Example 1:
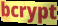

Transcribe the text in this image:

bcrypt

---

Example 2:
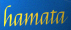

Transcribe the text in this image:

hamata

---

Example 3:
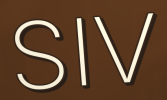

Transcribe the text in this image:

SIV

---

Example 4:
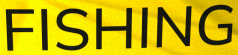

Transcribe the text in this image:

FISHING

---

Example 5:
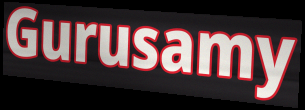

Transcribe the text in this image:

Gurusamy